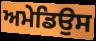
ਅਮੇਡਿਉਸ